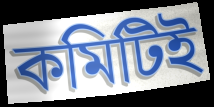
কমিটিই